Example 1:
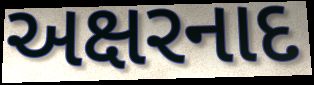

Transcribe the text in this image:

અક્ષરનાદ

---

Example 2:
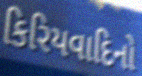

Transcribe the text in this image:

કિરિયવાદિનો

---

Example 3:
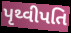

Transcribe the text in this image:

પૃથ્વીપતિ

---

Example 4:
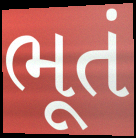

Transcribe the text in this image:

ભૂતં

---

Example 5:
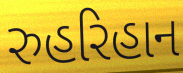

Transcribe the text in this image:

રુહરિહાન